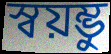
স্বয়ম্ভু